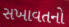
સખાવતનો